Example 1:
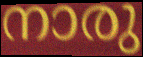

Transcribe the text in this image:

നാരു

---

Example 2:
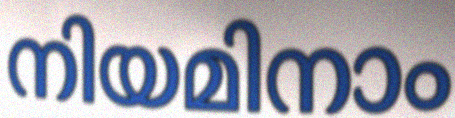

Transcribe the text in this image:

നിയമിനാം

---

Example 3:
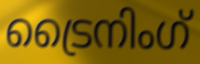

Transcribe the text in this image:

ട്രൈനിംഗ്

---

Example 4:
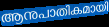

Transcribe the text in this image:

ആനുപാതികമായി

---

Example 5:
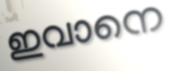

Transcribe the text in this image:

ഇവാനെ